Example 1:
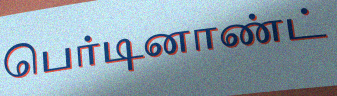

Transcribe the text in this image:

பெர்டினாண்ட்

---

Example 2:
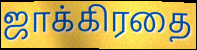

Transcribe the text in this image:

ஜாக்கிரதை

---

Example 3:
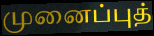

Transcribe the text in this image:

முனைப்புத்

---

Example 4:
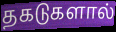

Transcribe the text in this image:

தகடுகளால்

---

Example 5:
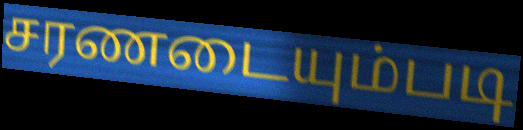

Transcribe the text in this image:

சரணடையும்படி